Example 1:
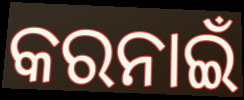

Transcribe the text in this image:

କରନାଇଁ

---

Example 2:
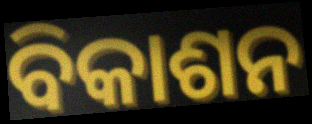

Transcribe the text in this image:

ବିକାଶନ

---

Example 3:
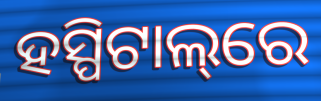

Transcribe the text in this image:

ହସ୍ପିଟାଲ୍‌ରେ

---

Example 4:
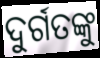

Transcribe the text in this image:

ଦୁର୍ଗତଙ୍କୁ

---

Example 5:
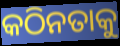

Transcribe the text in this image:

କଠିନତାକୁ